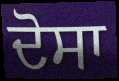
ਦੋਸਾ